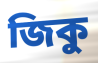
জিকু